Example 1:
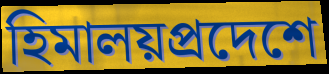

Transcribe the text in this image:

হিমালয়প্রদেশে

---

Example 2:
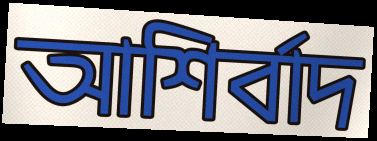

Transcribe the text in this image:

আশির্বাদ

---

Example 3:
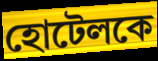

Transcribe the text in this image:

হোটেলকে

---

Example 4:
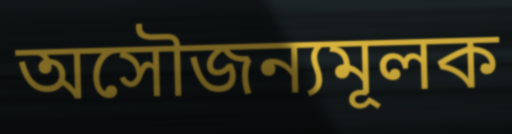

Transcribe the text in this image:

অসৌজন্যমূলক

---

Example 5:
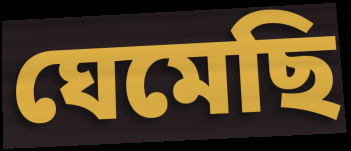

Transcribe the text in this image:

ঘেমেছি